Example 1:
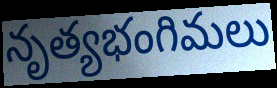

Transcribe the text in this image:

నృత్యభంగిమలు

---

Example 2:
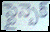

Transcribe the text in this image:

స్టైన్బెక్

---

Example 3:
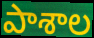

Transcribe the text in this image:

పాశాల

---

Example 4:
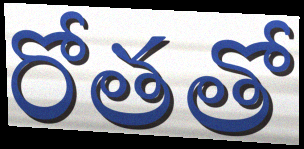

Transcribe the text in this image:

రోతతో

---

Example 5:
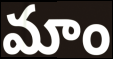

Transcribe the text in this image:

మాం